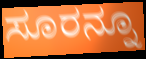
ಸೂರನ್ನೂ